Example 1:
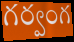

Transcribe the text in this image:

గర్వంగ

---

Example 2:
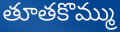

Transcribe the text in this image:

తూతకొమ్ము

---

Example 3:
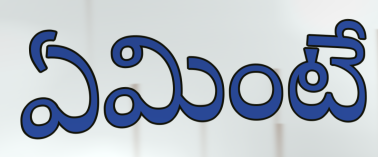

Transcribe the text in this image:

ఏమింటే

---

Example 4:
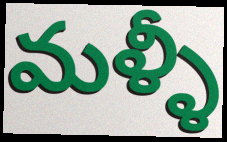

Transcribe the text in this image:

మళ్ళీ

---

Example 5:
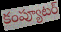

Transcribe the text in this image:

కంప్యూటర్